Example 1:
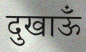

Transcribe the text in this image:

दुखाऊँ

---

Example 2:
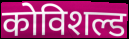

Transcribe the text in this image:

कोविशल्ड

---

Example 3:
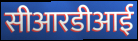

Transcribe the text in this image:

सीआरडीआई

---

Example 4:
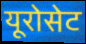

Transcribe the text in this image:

यूरोसेट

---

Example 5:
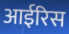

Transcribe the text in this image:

आईरिस